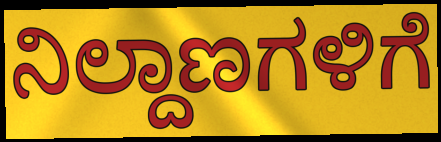
ನಿಲ್ದಾಣಗಳಿಗೆ